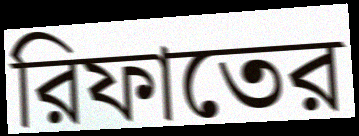
রিফাতের